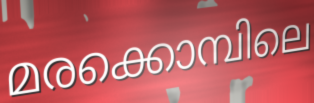
മരക്കൊമ്പിലെ